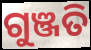
ଗୁଞ୍ଜତି